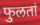
फुलतां